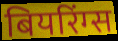
बियरिंग्स